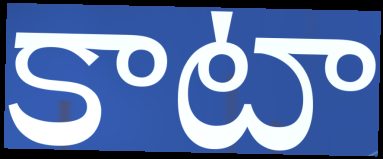
కాటా